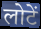
लोटें